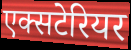
एक्सटेरियर